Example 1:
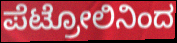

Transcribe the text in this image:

ಪೆಟ್ರೋಲಿನಿಂದ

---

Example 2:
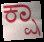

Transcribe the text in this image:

ಕ್ಷಾ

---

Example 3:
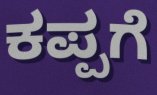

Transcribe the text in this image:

ಕಪ್ಪಗೆ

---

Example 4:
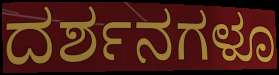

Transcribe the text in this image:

ದರ್ಶನಗಳೂ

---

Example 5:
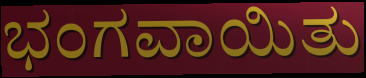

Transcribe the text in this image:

ಭಂಗವಾಯಿತು